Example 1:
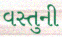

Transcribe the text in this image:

વસ્તુની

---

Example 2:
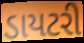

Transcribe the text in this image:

ડાયટરી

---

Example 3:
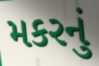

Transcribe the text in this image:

મકરનું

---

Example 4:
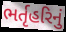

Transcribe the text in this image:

ભર્તૃહરિનું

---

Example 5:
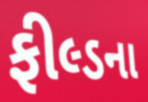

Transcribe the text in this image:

ફીલ્ડના